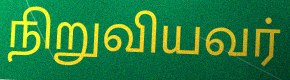
நிறுவியவர்